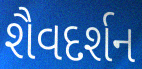
શૈવદર્શન